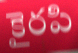
కైరపి